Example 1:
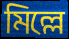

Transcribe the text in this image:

মিল্লে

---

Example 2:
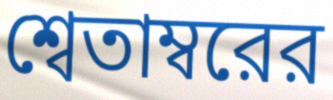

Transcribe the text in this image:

শ্বেতাম্বরের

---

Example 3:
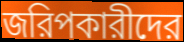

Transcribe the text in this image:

জরিপকারীদের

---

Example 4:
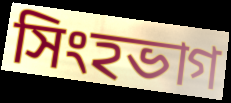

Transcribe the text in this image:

সিংহভাগ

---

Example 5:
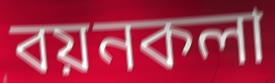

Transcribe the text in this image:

বয়নকলা